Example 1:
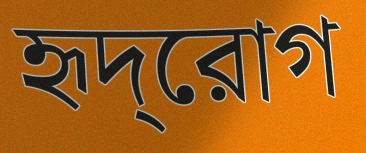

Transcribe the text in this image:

হৃদ্‌রোগ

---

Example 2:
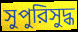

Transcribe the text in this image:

সুপুরিসুদ্ধ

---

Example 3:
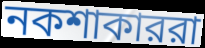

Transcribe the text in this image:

নকশাকাররা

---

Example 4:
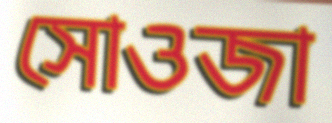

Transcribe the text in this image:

সোওজা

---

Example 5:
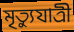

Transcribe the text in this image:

মৃত্যুযাত্রী